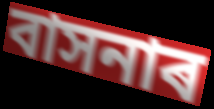
বাসনাৰ